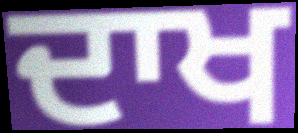
ਦਾਖ